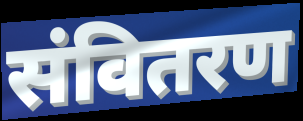
संवितरण